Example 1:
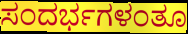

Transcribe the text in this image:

ಸಂದರ್ಭಗಳಂತೂ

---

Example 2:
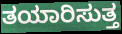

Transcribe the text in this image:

ತಯಾರಿಸುತ್ತ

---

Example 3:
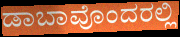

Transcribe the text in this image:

ಡಾಬಾವೊಂದರಲ್ಲಿ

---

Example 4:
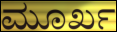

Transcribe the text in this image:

ಮೂರ್ಖ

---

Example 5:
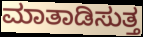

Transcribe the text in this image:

ಮಾತಾಡಿಸುತ್ತ